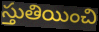
స్తుతియించి